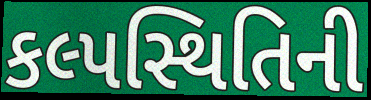
કલ્પસ્થિતિની